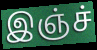
இஞ்ச்